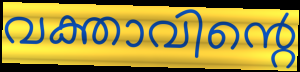
വക്താവിന്റെ